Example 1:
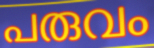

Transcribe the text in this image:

പരുവം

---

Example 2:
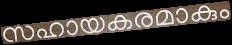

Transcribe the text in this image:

സഹായകരമാകും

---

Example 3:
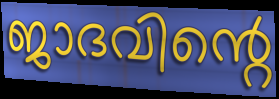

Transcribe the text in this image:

ജാദവിന്റെ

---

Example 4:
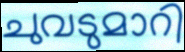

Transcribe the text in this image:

ചുവടുമാറി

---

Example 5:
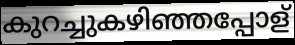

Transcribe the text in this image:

കുറച്ചുകഴിഞ്ഞപ്പോള്